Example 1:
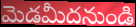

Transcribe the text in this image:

మెడమీదనుండి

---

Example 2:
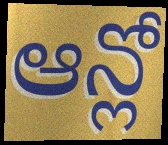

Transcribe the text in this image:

ఆన్లో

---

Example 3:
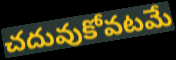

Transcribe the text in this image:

చదువుకోవటమే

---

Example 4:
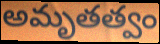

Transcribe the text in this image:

అమృతత్వం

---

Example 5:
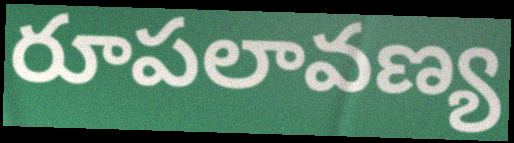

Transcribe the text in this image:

రూపలావణ్య